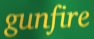
gunfire